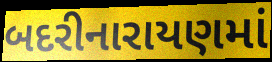
બદરીનારાયણમાં